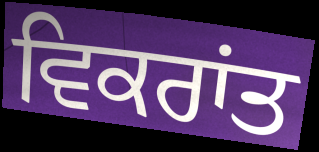
ਵਿਕਰਾਂਤ